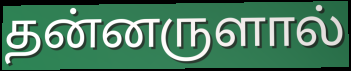
தன்னருளால்